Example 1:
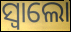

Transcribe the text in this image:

ସ୍ବାଲୋ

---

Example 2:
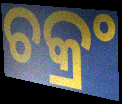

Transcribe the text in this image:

ଚକ୍ରଂ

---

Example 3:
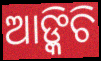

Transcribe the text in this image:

ଆଙ୍କିଚି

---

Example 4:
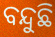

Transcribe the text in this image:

ବନ୍ଦୁଛି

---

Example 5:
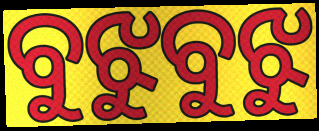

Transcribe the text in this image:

ବୁଝୁବୁଝୁ